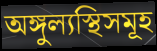
অঙ্গুল্যস্থিসমূহ